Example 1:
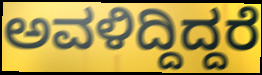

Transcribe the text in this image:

ಅವಳಿದ್ದಿದ್ದರೆ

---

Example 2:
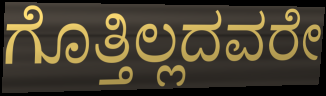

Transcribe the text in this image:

ಗೊತ್ತಿಲ್ಲದವರೇ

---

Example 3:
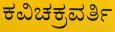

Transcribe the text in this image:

ಕವಿಚಕ್ರವರ್ತಿ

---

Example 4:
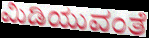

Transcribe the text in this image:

ಮಿಡಿಯುವಂತೆ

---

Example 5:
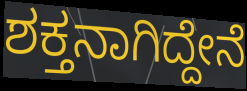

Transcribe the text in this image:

ಶಕ್ತನಾಗಿದ್ದೇನೆ